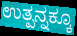
ಉತ್ಪನ್ನಕ್ಕೂ